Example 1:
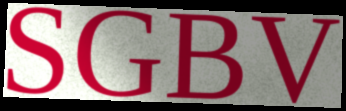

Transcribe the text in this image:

SGBV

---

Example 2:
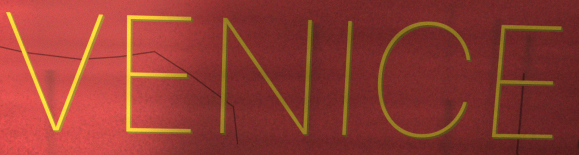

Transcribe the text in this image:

VENICE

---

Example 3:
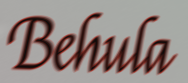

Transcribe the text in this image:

Behula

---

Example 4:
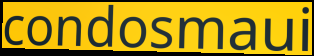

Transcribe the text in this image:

condosmaui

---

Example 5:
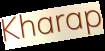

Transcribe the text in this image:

Kharap